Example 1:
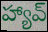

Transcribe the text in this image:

హ్యావ్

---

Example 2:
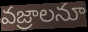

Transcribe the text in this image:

వజ్రాలనూ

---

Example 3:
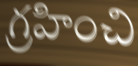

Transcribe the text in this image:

గ్రహించి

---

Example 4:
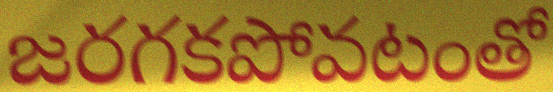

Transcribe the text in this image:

జరగకపోవటంతో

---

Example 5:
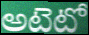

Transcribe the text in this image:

అటెటో